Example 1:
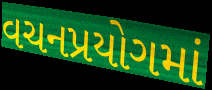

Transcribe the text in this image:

વચનપ્રયોગમાં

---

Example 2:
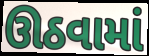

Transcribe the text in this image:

ઊઠવામાં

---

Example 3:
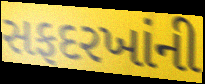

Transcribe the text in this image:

સફદરખાંની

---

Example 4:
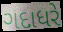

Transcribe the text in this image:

ગદાધરે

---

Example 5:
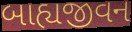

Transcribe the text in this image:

બાહ્યજીવન